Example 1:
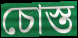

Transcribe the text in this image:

চোস্ত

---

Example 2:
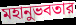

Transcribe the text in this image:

মহানুভবতার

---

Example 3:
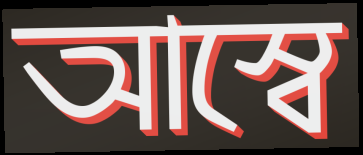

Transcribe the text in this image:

আস্বে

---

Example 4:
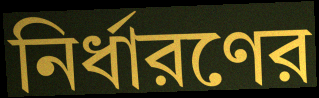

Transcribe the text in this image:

নির্ধারণের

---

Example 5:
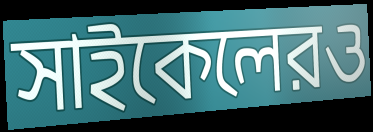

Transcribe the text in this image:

সাইকেলেরও